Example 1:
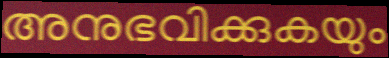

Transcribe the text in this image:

അനുഭവിക്കുകയും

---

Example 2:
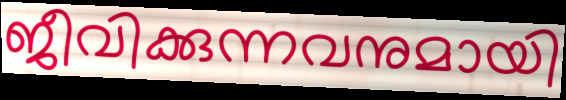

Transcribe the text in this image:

ജീവിക്കുന്നവനുമായി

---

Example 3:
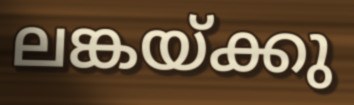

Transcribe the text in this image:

ലങ്കയ്ക്കു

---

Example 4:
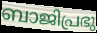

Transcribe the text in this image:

ബാജിപ്രഭു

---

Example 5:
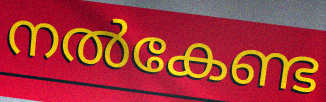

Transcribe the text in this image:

നൽകേണ്ട